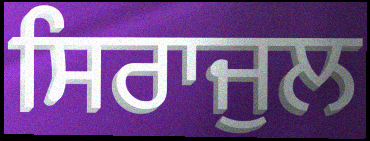
ਸਿਰਾਜੁਲ